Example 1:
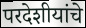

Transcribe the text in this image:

परदेशीयांचे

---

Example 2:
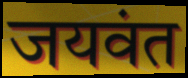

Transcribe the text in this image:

जयवंत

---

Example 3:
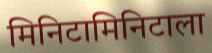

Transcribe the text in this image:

मिनिटामिनिटाला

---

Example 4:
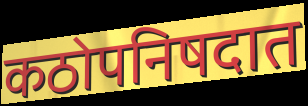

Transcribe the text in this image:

कठोपनिषदात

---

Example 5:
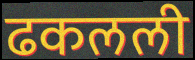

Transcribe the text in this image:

ढकलली